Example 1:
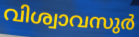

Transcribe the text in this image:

വിശ്വാവസുർ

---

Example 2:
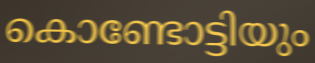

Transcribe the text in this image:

കൊണ്ടോട്ടിയും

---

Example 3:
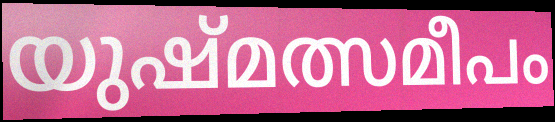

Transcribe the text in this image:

യുഷ്മത്സമീപം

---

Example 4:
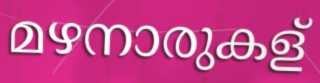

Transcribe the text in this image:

മഴനാരുകള്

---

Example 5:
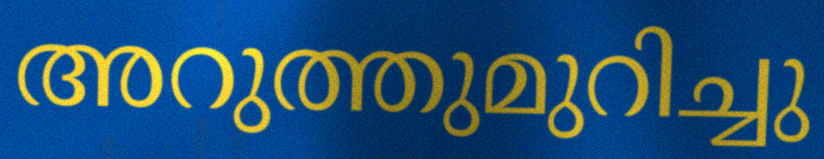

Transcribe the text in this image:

അറുത്തുമുറിച്ചു